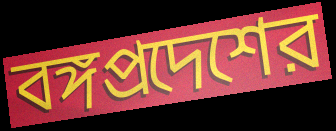
বঙ্গপ্রদেশের